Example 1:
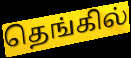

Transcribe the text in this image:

தெங்கில்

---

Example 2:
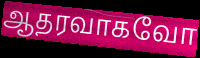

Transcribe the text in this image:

ஆதரவாகவோ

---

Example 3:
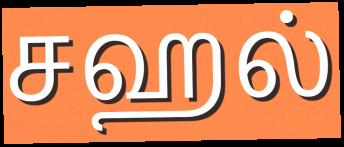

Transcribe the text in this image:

சஹல்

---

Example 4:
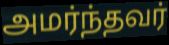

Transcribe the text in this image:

அமர்ந்தவர்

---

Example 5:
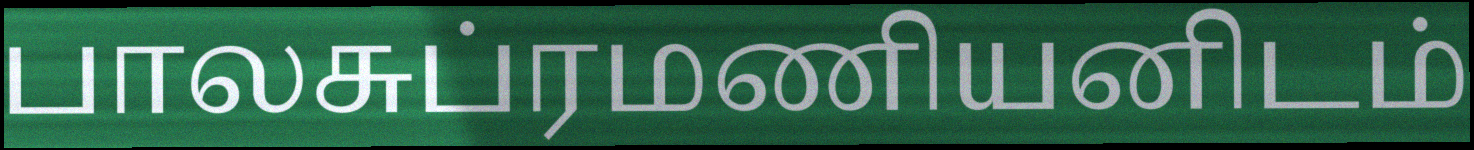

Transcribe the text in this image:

பாலசுப்ரமணியனிடம்